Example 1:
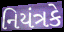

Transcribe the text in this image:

નિયંત્રકે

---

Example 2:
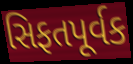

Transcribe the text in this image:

સિફતપૂર્વક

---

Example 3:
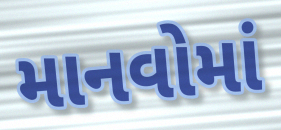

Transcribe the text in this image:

માનવોમાં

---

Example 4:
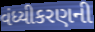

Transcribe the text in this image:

વંધ્યીકરણની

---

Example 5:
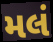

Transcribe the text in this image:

મલં